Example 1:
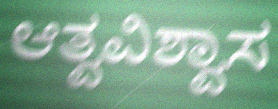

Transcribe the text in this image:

ಆತ್ವವಿಶ್ವಾಸ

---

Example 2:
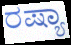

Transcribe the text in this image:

ರಷ್ಯಾ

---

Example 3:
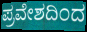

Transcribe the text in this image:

ಪ್ರವೇಶದಿಂದ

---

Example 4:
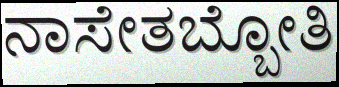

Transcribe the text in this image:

ನಾಸೇತಬ್ಬೋತಿ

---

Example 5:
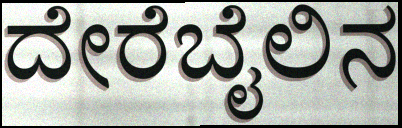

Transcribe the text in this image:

ದೇರೆಬೈಲಿನ